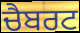
ਚੈਬਰਟ